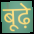
बूढ़े